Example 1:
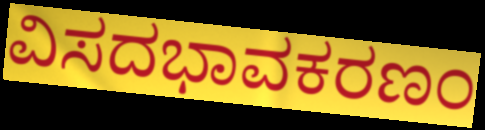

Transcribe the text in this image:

ವಿಸದಭಾವಕರಣಂ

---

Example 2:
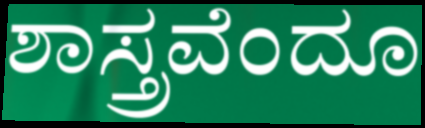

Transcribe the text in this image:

ಶಾಸ್ತ್ರವೆಂದೂ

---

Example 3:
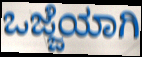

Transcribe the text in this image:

ಒಜ್ಜೆಯಾಗಿ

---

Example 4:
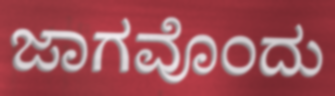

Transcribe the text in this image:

ಜಾಗವೊಂದು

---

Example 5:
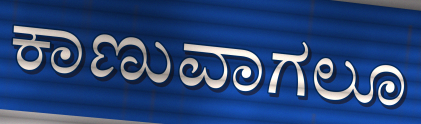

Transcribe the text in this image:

ಕಾಣುವಾಗಲೂ